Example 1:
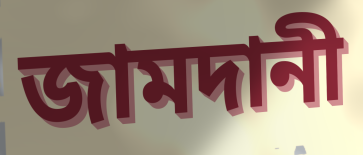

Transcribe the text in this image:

জামদানী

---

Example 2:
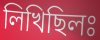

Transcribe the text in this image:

লিখিছিলঃ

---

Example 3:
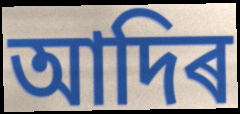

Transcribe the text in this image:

আদিৰ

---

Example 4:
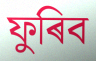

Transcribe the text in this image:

ফুৰিব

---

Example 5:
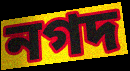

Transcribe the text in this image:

নগদ